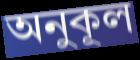
অনুকূল